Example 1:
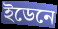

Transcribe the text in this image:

ইডেনে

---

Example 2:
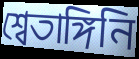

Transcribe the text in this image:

শ্বেতাঙ্গিনি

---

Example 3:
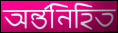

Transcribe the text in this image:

অর্ন্তনিহিত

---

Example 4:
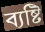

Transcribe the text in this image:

ব্যষ্টি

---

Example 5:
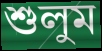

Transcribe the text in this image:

শুলুম